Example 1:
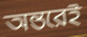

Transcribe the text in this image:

অন্তরেই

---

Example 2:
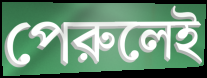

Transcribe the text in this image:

পেরুলেই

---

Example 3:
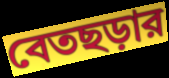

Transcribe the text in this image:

বেতছড়ার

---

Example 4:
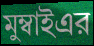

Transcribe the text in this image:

মুম্বাইএর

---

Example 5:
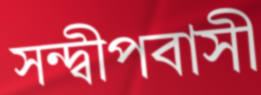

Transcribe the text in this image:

সন্দ্বীপবাসী